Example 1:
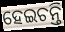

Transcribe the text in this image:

ହେଇଚନ୍ତି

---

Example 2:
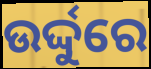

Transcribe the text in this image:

ଉର୍ଦ୍ଦୁରେ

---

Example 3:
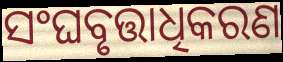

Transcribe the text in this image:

ସଂଘବୃତ୍ତାଧିକରଣ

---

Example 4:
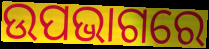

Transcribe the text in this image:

ଉପଭାଗରେ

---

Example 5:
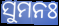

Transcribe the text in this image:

ସୁମନଃ